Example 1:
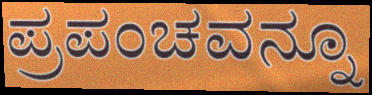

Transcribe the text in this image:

ಪ್ರಪಂಚವನ್ನೂ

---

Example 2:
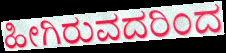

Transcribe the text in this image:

ಹೀಗಿರುವದರಿಂದ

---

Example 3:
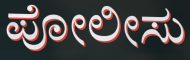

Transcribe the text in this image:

ಪೋಲೀಸು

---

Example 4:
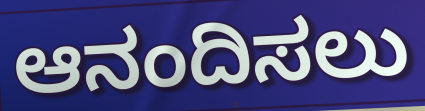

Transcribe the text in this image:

ಆನಂದಿಸಲು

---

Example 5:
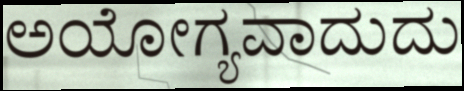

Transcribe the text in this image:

ಅಯೋಗ್ಯವಾದುದು